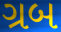
ગ્રબ